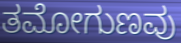
ತಮೋಗುಣವು